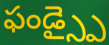
ఫండ్స్పై